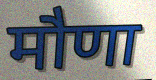
मौणा